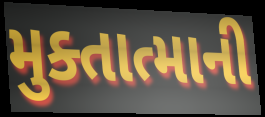
મુક્તાત્માની